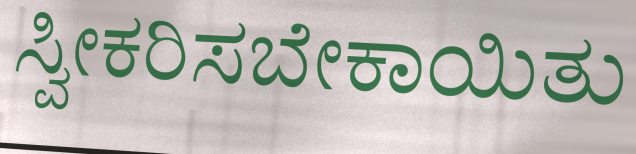
ಸ್ವೀಕರಿಸಬೇಕಾಯಿತು